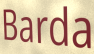
Barda